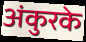
अंकुरके